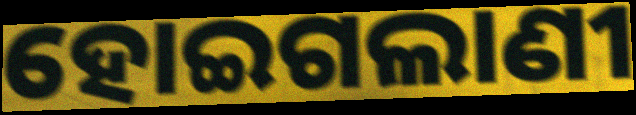
ହୋଇଗଲାଣୀ